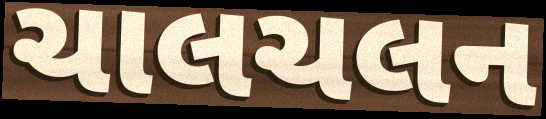
ચાલચલન